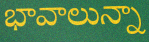
భావాలున్నా